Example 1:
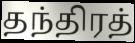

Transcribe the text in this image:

தந்திரத்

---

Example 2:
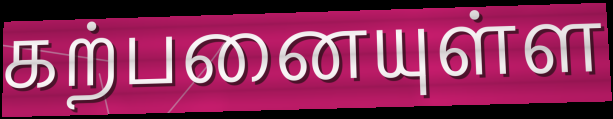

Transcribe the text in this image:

கற்பனையுள்ள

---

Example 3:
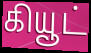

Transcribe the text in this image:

கியூட்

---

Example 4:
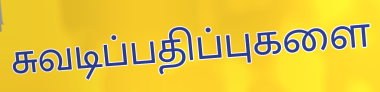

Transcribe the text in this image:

சுவடிப்பதிப்புகளை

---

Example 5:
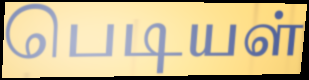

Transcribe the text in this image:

பெடியள்